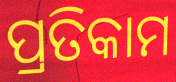
ପ୍ରତିକାମ